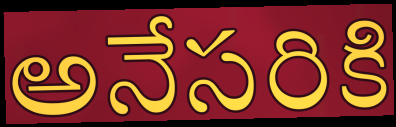
అనేసరికి